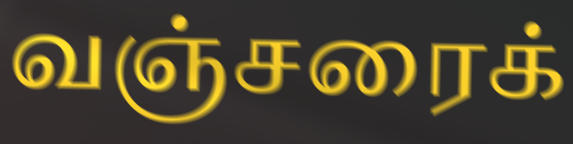
வஞ்சரைக்